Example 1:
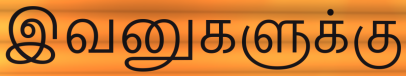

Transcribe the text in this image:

இவனுகளுக்கு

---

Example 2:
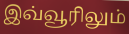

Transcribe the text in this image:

இவ்வூரிலும்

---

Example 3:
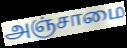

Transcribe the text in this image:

அஞ்சாமை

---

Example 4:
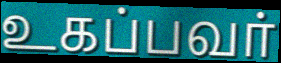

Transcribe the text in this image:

உகப்பவர்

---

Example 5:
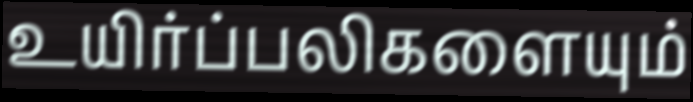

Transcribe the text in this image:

உயிர்ப்பலிகளையும்